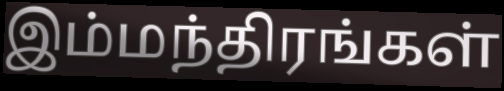
இம்மந்திரங்கள்